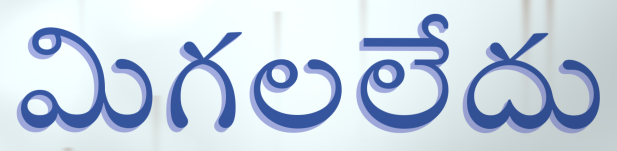
మిగలలేదు